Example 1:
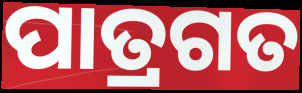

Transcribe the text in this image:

ପାତ୍ରଗତ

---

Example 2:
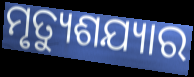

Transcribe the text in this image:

ମୃତ୍ୟୁଶଯ୍ୟାର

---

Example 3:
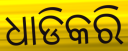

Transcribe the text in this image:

ଧାଡିକରି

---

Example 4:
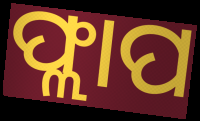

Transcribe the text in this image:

ଫ୍ଲାପ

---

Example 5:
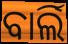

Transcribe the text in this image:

ବାର୍ଲି